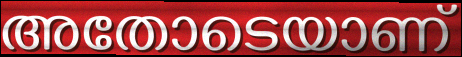
അതോടെയാണ്